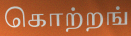
கொற்றங்